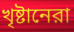
খৃষ্টানেরা